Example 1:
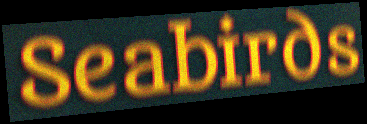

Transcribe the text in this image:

Seabirds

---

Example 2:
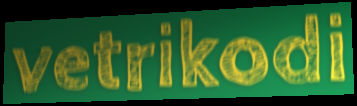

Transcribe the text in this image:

vetrikodi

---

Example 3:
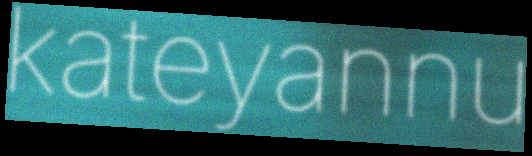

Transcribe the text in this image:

kateyannu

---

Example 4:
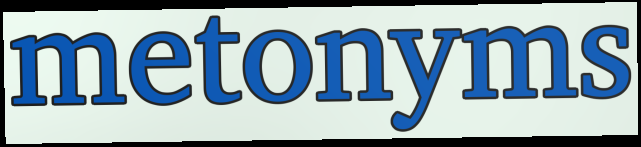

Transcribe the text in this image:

metonyms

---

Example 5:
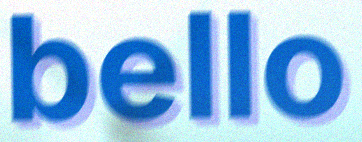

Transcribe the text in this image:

bello